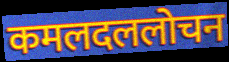
कमलदललोचन